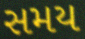
સમય